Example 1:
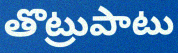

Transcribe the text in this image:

తొట్రుపాటు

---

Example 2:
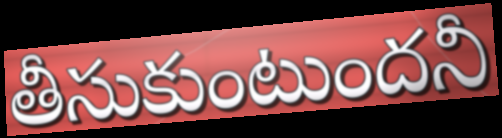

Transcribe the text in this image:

తీసుకుంటుందనీ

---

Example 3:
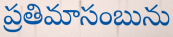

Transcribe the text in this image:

ప్రతిమాసంబును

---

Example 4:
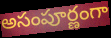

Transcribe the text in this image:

అసంపూర్ణంగా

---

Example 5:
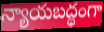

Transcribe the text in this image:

న్యాయబద్ధంగా